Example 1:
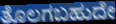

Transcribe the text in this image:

ತೊಲಗಬಹುದೇ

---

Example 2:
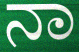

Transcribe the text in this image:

ನಾ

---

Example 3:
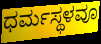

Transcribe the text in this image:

ಧರ್ಮಸ್ಥಳವೂ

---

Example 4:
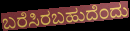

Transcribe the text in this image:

ಬರೆಸಿರಬಹುದೆಂದು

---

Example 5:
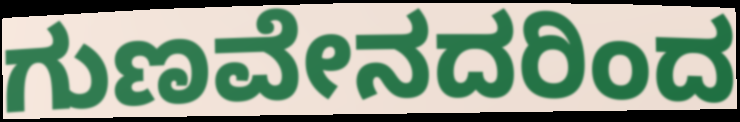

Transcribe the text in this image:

ಗುಣವೇನದರಿಂದ